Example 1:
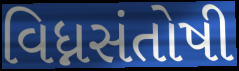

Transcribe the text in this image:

વિધ્નસંતોષી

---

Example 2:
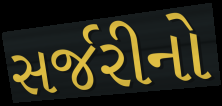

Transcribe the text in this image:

સર્જરીનો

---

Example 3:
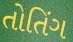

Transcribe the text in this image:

તોતિંગ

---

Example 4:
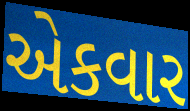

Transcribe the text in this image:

એકવાર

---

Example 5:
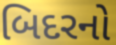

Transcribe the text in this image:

બિદરનો